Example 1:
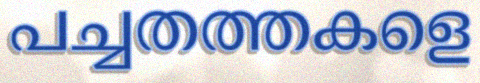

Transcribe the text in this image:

പച്ചതത്തകളെ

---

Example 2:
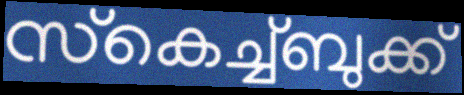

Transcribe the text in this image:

സ്‌കെച്ച്ബുക്ക്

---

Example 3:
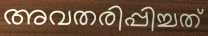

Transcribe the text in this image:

അവതരിപ്പിച്ചത്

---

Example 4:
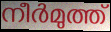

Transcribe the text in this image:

നീർമുത്ത്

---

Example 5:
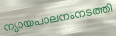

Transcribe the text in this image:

ന്യായപാലനംനടത്തി